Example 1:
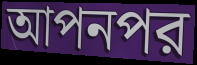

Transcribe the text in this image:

আপনপর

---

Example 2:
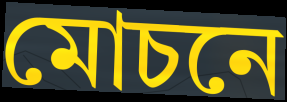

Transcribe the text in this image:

মোচনে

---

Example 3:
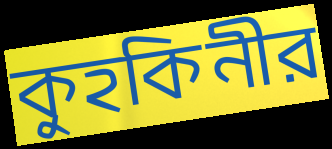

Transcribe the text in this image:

কুহকিনীর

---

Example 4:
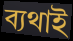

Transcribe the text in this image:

ব্যথাই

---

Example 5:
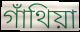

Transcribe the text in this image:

গাঁথিয়া